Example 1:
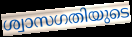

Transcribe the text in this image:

ശ്വാസഗതിയുടെ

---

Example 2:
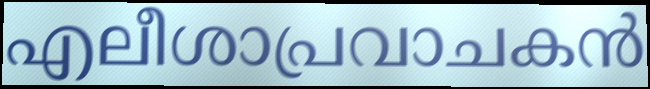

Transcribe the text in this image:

എലീശാപ്രവാചകൻ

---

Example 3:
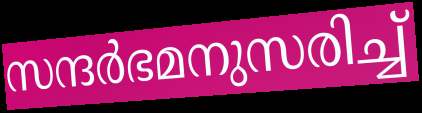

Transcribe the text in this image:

സന്ദർഭമനുസരിച്ച്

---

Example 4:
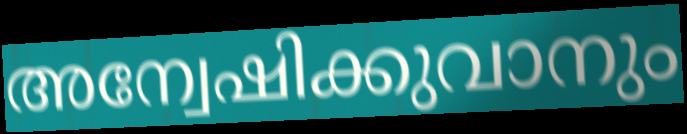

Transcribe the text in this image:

അന്വേഷിക്കുവാനും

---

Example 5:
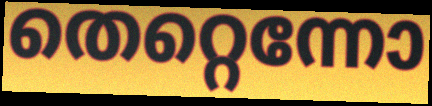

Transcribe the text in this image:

തെറ്റെന്നോ